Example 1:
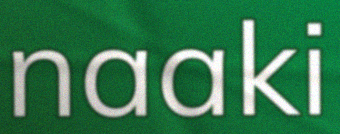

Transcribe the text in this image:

naaki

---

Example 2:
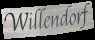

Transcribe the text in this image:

Willendorf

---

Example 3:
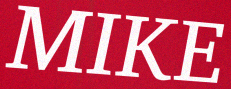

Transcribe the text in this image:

MIKE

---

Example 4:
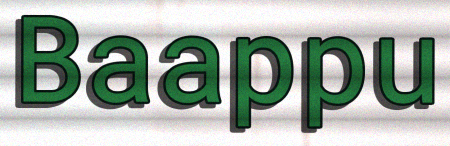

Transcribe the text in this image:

Baappu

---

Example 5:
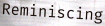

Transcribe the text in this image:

Reminiscing